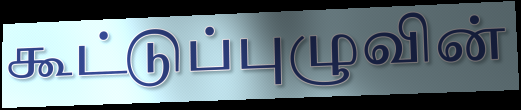
கூட்டுப்புழுவின்